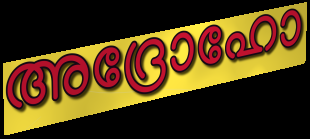
അദ്രോഹോ